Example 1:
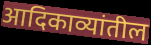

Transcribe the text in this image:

आदिकाव्यांतील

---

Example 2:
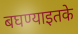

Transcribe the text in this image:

बघण्याइतके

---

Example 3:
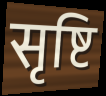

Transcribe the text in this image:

सृष्टि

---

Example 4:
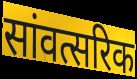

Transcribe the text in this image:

सांवत्सरिक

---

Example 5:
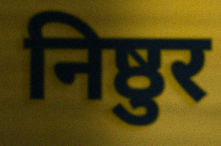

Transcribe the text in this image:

निष्ठुर